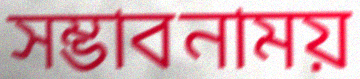
সম্ভাবনাময়